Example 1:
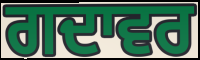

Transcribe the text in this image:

ਗਦਾਵਰ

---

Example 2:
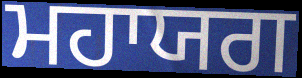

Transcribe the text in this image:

ਮਹਾਯਗ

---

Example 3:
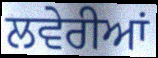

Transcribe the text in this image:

ਲਵੇਰੀਆਂ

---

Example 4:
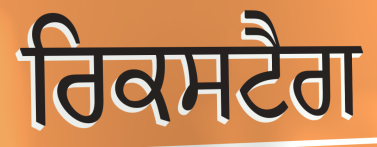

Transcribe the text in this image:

ਰਿਕਸਟੈਗ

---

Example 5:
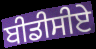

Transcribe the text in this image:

ਬੀਡੀਸੀਏ